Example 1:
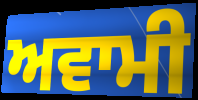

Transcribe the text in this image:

ਅਵਾਮੀ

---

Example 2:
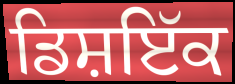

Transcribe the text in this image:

ਡਿਸ਼ਇੱਕ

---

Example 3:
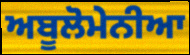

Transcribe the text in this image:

ਅਬੂਲੋਮੇਨੀਆ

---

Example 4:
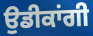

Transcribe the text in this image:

ਉਡੀਕਾਂਗੀ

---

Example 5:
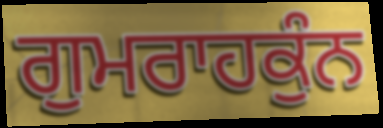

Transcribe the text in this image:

ਗੁਮਰਾਹਕੁੰਨ